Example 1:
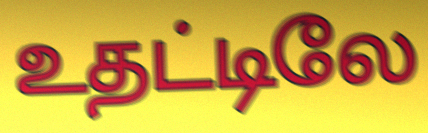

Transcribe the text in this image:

உதட்டிலே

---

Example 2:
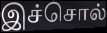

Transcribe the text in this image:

இச்சொல்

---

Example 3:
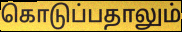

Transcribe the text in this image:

கொடுப்பதாலும்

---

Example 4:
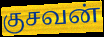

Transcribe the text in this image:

குசவன்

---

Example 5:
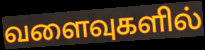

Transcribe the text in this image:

வளைவுகளில்